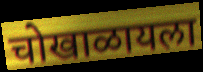
चोखाळायला